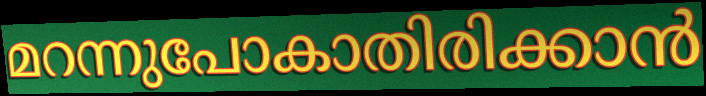
മറന്നുപോകാതിരിക്കാൻ